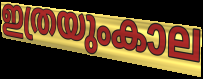
ഇത്രയുംകാല